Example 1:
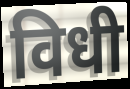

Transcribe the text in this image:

विधी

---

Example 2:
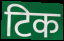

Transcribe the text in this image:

टिक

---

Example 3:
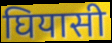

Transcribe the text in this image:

घियासी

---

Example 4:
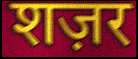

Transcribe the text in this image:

शज़र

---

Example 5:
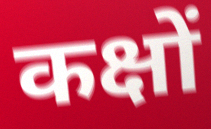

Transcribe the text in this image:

कक्षों